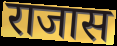
राजास